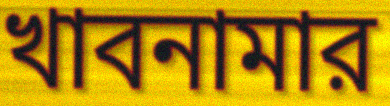
খাবনামার